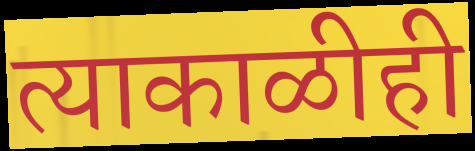
त्याकाळीही